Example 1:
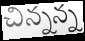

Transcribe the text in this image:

చిన్నన్న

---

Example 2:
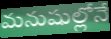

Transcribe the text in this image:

మనుషుల్లోనే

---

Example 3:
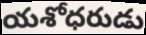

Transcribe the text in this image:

యశోధరుడు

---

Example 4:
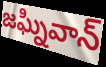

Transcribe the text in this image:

జఘ్నివాన్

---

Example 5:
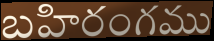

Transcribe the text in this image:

బహిరంగము